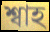
শ্বাহ